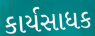
કાર્યસાધક